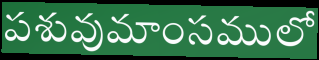
పశువుమాంసములో